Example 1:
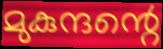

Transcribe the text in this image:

മുകുന്ദന്റെ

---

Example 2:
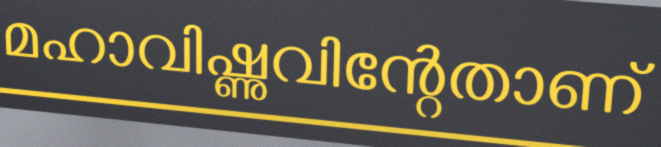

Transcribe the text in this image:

മഹാവിഷ്ണുവിന്റേതാണ്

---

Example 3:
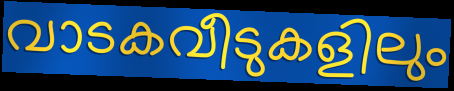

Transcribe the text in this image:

വാടകവീടുകളിലും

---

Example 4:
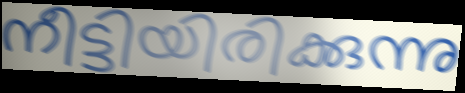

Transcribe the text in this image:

നീട്ടിയിരിക്കുന്നു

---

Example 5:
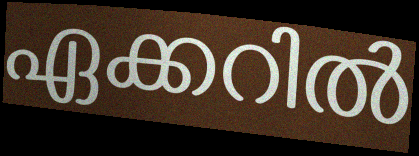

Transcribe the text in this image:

ഏക്കറിൽ